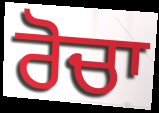
ਰੋਚਾ